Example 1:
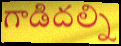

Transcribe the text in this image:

గాడిదల్ని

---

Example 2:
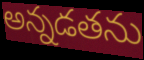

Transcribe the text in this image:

అన్నడతను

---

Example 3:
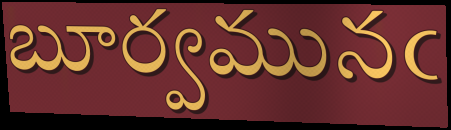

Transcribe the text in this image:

బూర్వమునఁ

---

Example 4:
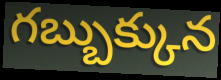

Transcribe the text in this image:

గబ్బుక్కున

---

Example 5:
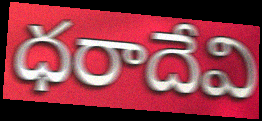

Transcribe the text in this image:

ధరాదేవి